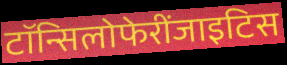
टॉन्सिलोफेरींजाइटिस